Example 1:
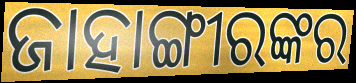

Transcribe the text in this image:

ଜାହାଙ୍ଗୀରଙ୍କର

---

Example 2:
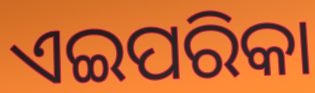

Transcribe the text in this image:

ଏଇପରିକା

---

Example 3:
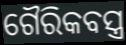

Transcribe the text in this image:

ଗୈରିକବସ୍ତ୍ର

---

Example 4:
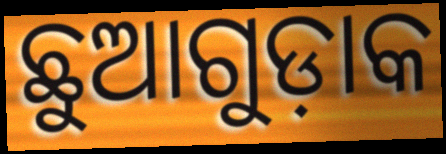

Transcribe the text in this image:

ଛୁଆଗୁଡ଼ାକ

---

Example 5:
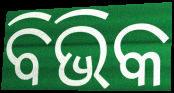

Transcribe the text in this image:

ବିଭିକ